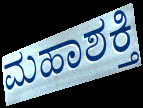
ಮಹಾಶಕ್ತಿ